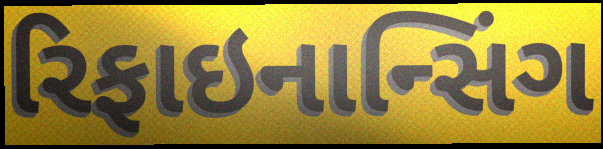
રિફાઇનાન્સિંગ